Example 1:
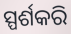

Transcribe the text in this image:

ସ୍ପର୍ଶକରି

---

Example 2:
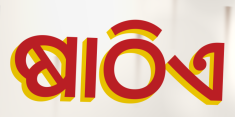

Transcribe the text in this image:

ଷାଠିଏ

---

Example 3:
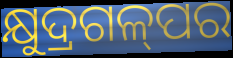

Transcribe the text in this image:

କ୍ଷୁଦ୍ରଗଳ୍‌ପର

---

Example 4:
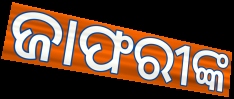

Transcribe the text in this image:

ଜାଫରୀଙ୍କ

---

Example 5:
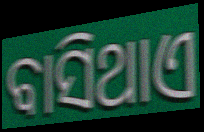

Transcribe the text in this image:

ବାସିଥାଏ